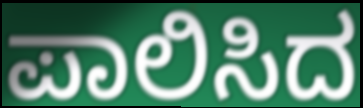
ಪಾಲಿಸಿದ